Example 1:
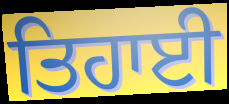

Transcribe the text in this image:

ਤਿਹਾਈ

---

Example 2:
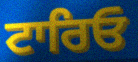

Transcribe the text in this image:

ਟਾਰਿਓ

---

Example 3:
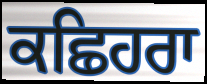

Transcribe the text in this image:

ਕਛਿਹਰਾ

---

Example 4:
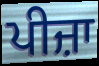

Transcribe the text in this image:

ਪੀਜ਼ਾ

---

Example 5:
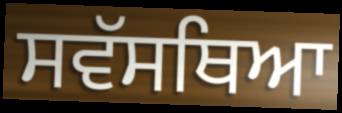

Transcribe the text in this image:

ਸਵੱਸਥਿਆ